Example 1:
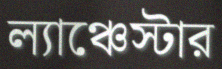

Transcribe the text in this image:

ল্যাঞ্চেস্টার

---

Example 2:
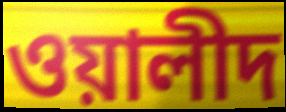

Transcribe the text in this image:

ওয়ালীদ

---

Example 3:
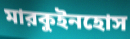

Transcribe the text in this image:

মারকুইনহোস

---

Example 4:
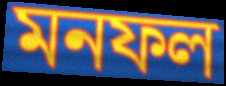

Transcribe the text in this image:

মনফল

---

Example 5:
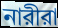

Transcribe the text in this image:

নারীরা